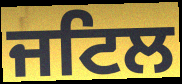
ਜਟਿਲ